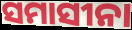
ସମାସୀନା